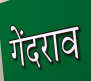
गेंदराव